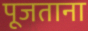
पूजताना